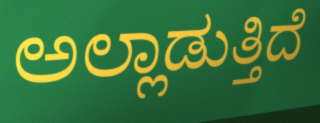
ಅಲ್ಲಾಡುತ್ತಿದೆ